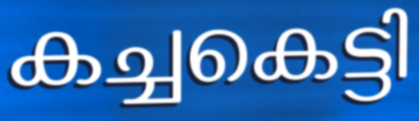
കച്ചകെട്ടി